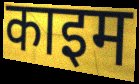
काइम